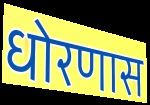
धोरणास